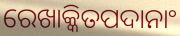
ରେଖାକ୍କିତପଦାନାଂ